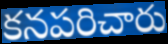
కనపరిచారు